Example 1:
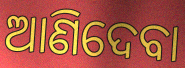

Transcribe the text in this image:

ଆଣିଦେବା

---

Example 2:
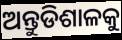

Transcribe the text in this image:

ଅନ୍ତୁଡିଶାଳକୁ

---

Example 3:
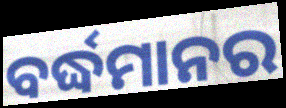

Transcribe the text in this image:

ବର୍ଦ୍ଧମାନର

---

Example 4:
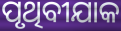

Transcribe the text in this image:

ପୃଥିବୀଯାକ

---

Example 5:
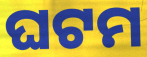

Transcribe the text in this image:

ଘଟମ